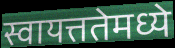
स्वायत्ततेमध्ये